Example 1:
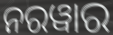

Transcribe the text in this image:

ନରୱାର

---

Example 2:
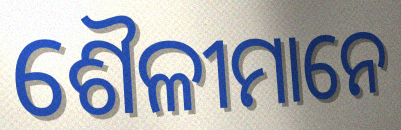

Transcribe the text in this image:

ଶୈଳୀମାନେ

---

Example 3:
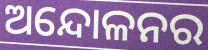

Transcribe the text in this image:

ଅନ୍ଦୋଳନର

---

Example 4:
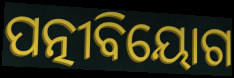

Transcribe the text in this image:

ପତ୍ନୀବିୟୋଗ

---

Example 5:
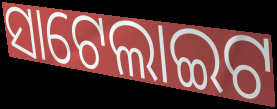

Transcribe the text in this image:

ସାଟେଲାଇଟ